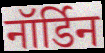
नॉर्डिन